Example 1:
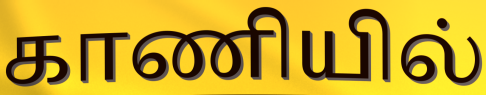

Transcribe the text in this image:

காணியில்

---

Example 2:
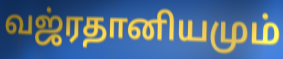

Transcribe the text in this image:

வஜ்ரதானியமும்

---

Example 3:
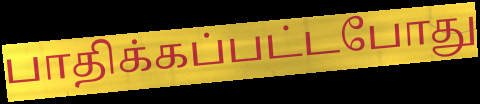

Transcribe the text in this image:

பாதிக்கப்பட்டபோது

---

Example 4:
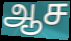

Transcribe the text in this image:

ஆச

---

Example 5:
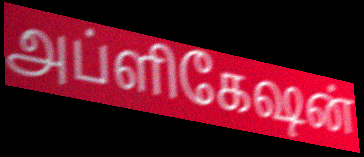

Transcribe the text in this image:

அப்ளிகேஷன்